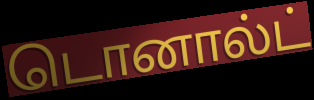
டொனால்ட்